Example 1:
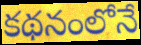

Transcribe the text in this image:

కథనంలోనే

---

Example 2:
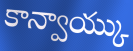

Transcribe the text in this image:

కాన్వాయ్కు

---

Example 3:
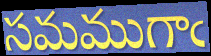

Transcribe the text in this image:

సమముగాఁ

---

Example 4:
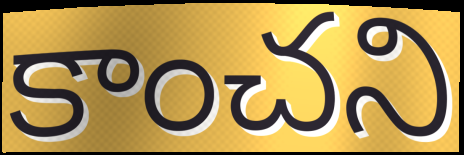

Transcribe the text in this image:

కాంచని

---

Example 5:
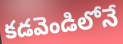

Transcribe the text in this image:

కడవెండిలోనే